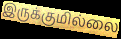
இருக்குமில்லை